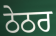
ਠੇਠਰ